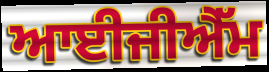
ਆਈਜੀਐੱਮ